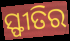
ସ୍ଫୀତିର